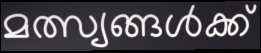
മത്സ്യങ്ങൾക്ക്